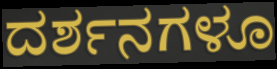
ದರ್ಶನಗಳೂ